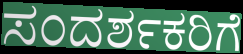
ಸಂದರ್ಶಕರಿಗೆ